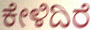
ಕೇಳಿದಿರೆ